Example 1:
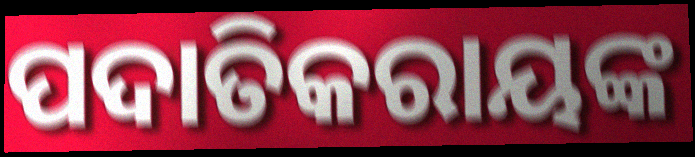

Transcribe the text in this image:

ପଦାତିକରାୟଙ୍କ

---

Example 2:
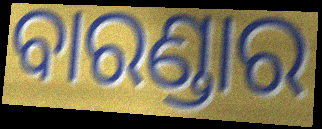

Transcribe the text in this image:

ବାରଣ୍ଡାର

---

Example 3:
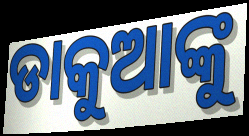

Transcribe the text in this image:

ଡାକୁଆଙ୍କୁ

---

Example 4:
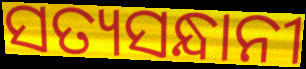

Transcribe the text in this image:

ସତ୍ୟସନ୍ଧାନୀ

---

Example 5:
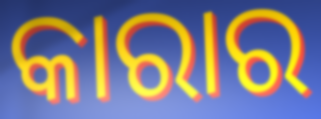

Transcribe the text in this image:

କାରାର